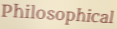
Philosophical